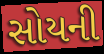
સોયની